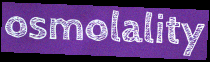
osmolality